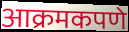
आक्रमकपणे